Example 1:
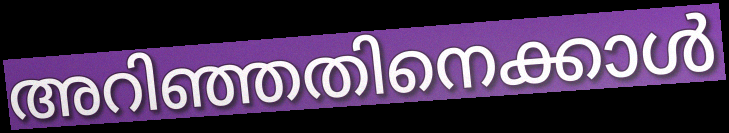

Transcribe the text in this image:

അറിഞ്ഞതിനെക്കാൾ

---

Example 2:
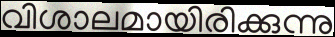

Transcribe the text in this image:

വിശാലമായിരിക്കുന്നു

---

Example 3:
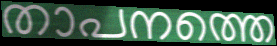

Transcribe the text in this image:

താപനത്തെ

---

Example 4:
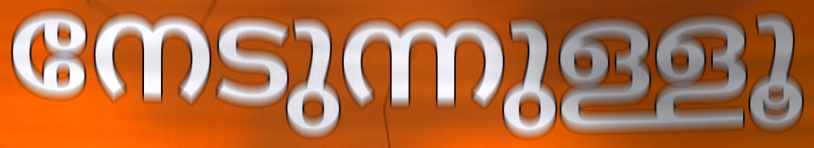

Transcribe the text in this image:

നേടുന്നുള്ളൂ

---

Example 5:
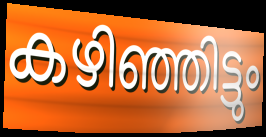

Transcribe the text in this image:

കഴിഞ്ഞിട്ടും